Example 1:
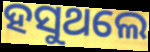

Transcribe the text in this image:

ହସୁଥଲେ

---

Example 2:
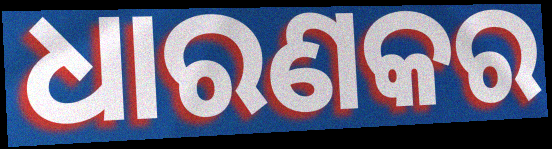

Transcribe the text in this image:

ଧାରଣକର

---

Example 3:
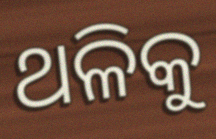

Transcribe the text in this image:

ଥଳିକୁ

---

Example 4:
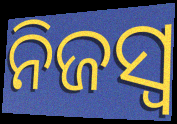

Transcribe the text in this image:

ନିଜସ୍ୱ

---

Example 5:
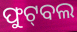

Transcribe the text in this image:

ଫୁଟ୍‌ବଲ